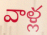
వాళ్ల